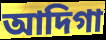
আদিগা